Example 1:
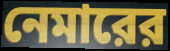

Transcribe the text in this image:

নেমারের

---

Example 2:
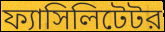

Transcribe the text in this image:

ফ্যাসিলিটেটর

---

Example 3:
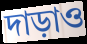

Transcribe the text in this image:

দাড়াও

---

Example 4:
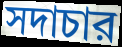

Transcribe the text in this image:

সদাচার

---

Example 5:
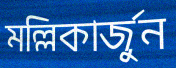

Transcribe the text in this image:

মল্লিকার্জুন